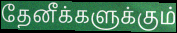
தேனீக்களுக்கும்